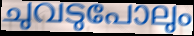
ചുവടുപോലും